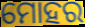
ମୋହର